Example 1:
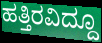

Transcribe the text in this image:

ಹತ್ತಿರವಿದ್ದೂ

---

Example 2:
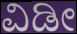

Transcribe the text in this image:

ವಿಡೀ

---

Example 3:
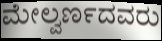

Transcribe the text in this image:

ಮೇಲ್ವರ್ಣದವರು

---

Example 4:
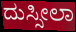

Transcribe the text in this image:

ದುಸ್ಸೀಲಾ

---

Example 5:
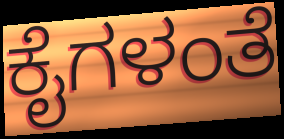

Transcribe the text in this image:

ಕೈಗಳಂತೆ